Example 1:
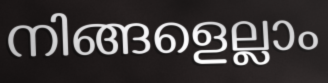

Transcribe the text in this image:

നിങ്ങളെല്ലാം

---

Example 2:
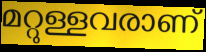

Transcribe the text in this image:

മറ്റുള്ളവരാണ്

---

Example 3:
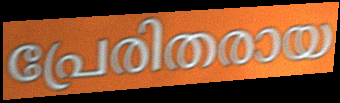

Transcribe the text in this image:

പ്രേരിതരായ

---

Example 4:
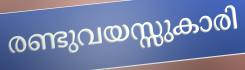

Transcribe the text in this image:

രണ്ടുവയസ്സുകാരി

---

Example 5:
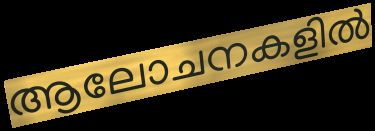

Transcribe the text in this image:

ആലോചനകളിൽ